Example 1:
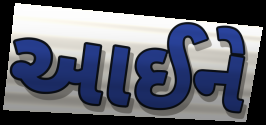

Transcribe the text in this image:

આઈને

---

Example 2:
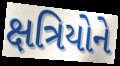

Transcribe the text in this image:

ક્ષત્રિયોને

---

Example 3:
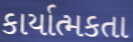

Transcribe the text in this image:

કાર્યાત્મકતા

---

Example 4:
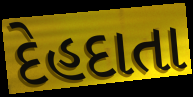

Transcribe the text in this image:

દેહદાતા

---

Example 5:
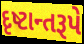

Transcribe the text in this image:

દૃષ્ટાન્તરૂપે